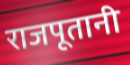
राजपूतानी